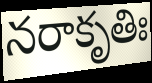
నరాకృతిః